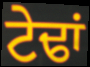
ਟੇਢਾਂ